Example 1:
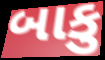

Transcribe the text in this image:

બાકુ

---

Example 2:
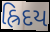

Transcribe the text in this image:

હ્રિદય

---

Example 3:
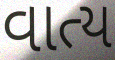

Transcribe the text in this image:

વાત્ય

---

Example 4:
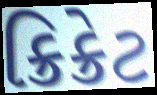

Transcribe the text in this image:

ક્રિક્રેટ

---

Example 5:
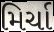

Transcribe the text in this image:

મિર્ચા